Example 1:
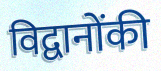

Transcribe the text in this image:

विद्वानोंकी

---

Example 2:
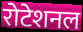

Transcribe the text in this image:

रोटेशनल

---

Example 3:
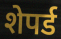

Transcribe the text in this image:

शेपर्ड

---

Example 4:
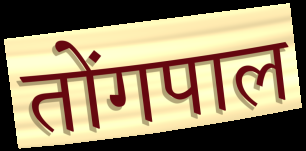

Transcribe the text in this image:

तोंगपाल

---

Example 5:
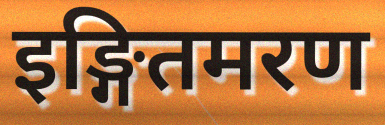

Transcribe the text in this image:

इङ्गितमरण